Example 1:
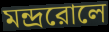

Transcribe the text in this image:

মন্দ্ররোলে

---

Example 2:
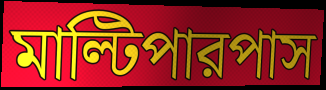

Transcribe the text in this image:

মাল্টিপারপাস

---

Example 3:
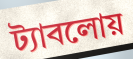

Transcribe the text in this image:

ট্যাবলোয়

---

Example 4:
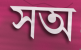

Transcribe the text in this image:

সঅ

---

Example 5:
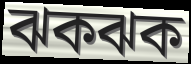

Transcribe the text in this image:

ঝকঝক